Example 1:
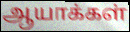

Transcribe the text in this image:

ஆயாக்கள்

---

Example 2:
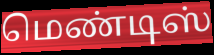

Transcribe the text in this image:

மெண்டிஸ்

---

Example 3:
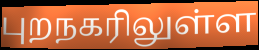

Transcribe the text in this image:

புறநகரிலுள்ள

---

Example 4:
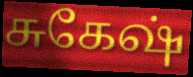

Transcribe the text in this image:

சுகேஷ்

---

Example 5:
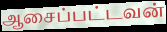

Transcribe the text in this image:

ஆசைப்பட்டவன்